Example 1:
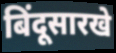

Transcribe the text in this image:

बिंदूसारखे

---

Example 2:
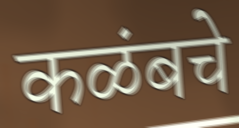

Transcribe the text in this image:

कळंबचे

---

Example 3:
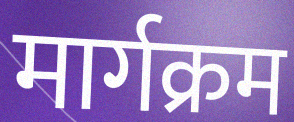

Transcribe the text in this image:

मार्गक्रम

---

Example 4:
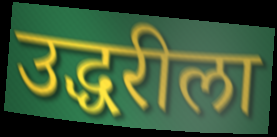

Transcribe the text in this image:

उद्धरीला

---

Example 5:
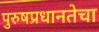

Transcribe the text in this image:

पुरुषप्रधानतेचा